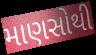
માણસોથી